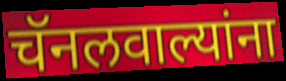
चॅनलवाल्यांना